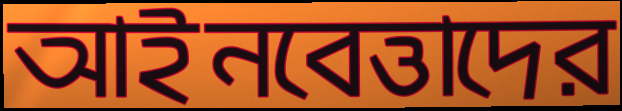
আইনবেত্তাদের